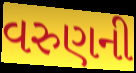
વરુણની